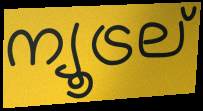
ന്യൂട്രല്